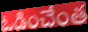
ఓడించేంత